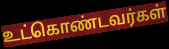
உட்கொண்டவர்கள்